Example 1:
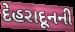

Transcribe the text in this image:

દેહરાદૂનની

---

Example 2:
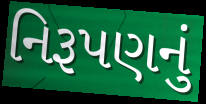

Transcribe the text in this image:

નિરૂપણનું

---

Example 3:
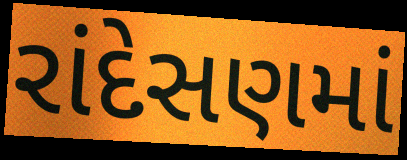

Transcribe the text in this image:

રાંદેસણમાં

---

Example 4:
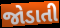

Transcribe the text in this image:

જોડાતી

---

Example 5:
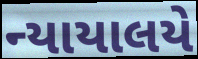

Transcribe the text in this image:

ન્યાયાલયે